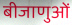
बीजाणुओं